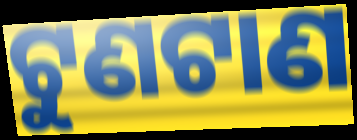
ଟୁଣଟାଣ